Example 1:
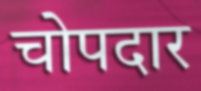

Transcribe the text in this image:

चोपदार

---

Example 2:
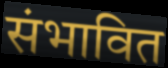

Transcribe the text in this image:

संभावित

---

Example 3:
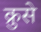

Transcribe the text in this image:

क्रुसे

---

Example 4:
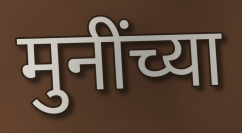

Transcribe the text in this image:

मुनींच्या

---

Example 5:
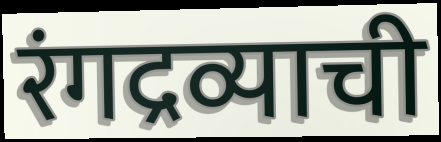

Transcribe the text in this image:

रंगद्रव्याची